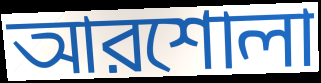
আরশোলা